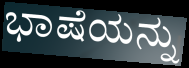
ಭಾಷೆಯನ್ನು